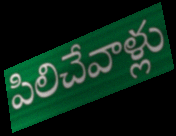
పిలిచేవాళ్లు